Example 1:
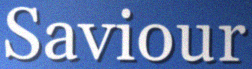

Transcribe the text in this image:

Saviour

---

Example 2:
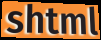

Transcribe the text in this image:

shtml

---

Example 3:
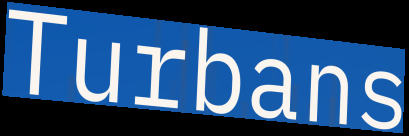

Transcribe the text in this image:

Turbans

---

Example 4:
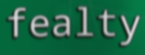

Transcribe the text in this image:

fealty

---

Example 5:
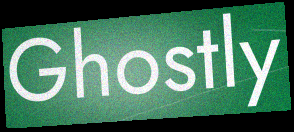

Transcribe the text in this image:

Ghostly